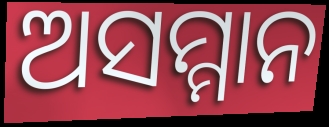
ଅସମ୍ମାନ